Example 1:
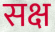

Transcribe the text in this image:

सक्ष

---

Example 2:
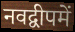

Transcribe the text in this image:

नवद्वीपमें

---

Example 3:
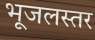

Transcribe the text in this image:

भूजलस्तर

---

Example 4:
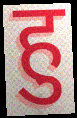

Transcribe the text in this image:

हु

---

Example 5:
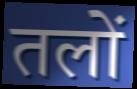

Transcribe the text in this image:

तलों